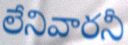
లేనివారనీ